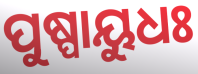
ପୁଷ୍ପାୟୁଧଃ